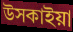
উসকাইয়া